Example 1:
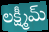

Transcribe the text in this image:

లక్ష్మీమ్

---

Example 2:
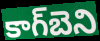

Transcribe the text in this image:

కాగ్‌బెని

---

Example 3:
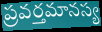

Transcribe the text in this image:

ప్రవర్తమానస్య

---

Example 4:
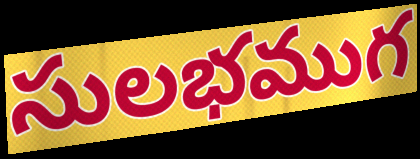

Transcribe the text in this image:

సులభముగ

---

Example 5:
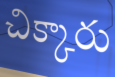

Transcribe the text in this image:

చిక్కారు